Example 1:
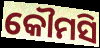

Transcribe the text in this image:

କୌମସି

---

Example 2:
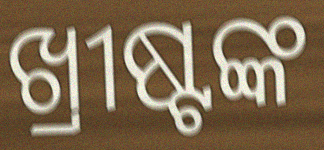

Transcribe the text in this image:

ଖ୍ରୀଷ୍ଟଙ୍କ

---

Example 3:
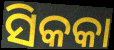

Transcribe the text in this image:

ସିକକା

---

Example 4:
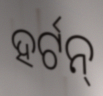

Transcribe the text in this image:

ହର୍ଟନ୍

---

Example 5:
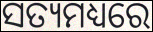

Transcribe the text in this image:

ସତ୍ୟମଧ୍ୟରେ